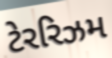
ટેરરિઝમ